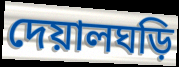
দেয়ালঘড়ি